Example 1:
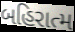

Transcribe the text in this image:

બહિરાત્મ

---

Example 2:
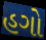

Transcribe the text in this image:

હગો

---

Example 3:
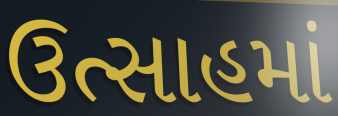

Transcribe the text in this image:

ઉત્સાહમાં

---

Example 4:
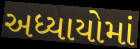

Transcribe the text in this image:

અધ્યાયોમાં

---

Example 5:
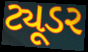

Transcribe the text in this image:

ટ્યૂડર